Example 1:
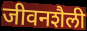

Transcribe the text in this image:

जीवनशैली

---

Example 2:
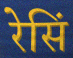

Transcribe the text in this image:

रेसिं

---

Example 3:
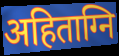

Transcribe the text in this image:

अहिताग्नि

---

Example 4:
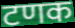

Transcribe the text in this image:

टणक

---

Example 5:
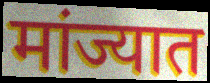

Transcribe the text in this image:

मांज्यात